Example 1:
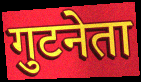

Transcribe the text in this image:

गुटनेता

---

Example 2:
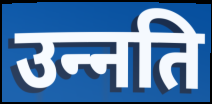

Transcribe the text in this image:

उन्‍नति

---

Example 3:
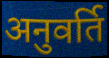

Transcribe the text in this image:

अनुवर्ति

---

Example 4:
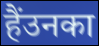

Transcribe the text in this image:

हैंउनका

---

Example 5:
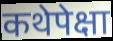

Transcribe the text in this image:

कथेपेक्षा